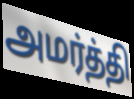
அமர்த்தி